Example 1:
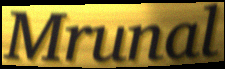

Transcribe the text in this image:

Mrunal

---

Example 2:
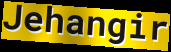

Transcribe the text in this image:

Jehangir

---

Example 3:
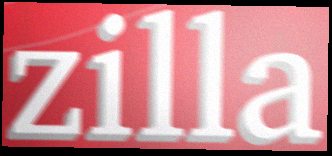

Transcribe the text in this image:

zilla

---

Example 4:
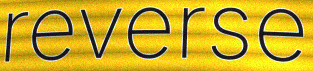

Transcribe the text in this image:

reverse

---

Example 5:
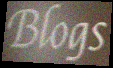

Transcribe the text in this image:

Blogs